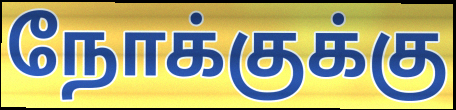
நோக்குக்கு